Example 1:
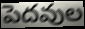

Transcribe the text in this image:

పెదవుల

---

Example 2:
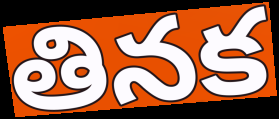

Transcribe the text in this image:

తినక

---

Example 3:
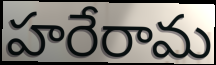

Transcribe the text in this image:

హరేరామ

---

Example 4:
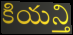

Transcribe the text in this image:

కియన్తి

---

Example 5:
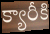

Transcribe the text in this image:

క్యారీకి